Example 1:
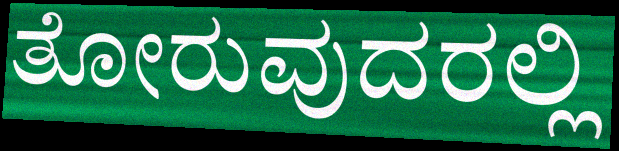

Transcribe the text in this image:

ತೋರುವುದರಲ್ಲಿ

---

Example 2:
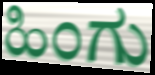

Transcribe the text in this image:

ಹಿಂಗು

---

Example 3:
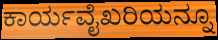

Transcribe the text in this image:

ಕಾರ್ಯವೈಖರಿಯನ್ನೂ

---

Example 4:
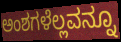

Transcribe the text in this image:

ಅಂಶಗಳೆಲ್ಲವನ್ನೂ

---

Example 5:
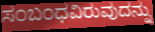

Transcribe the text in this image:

ಸಂಬಂಧವಿರುವುದನ್ನು